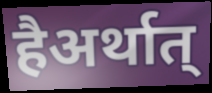
हैअर्थात्